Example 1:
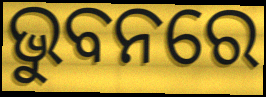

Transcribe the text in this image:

ଭୁବନରେ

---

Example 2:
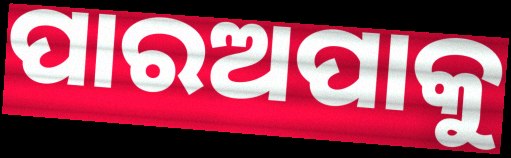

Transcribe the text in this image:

ପାରଅପାକୁ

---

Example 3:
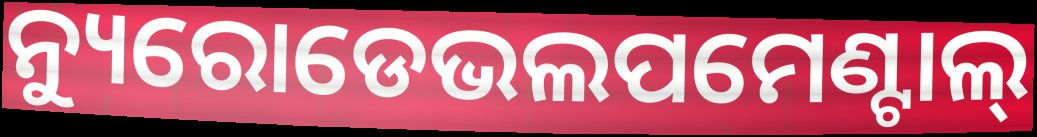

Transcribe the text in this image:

ନ୍ୟୁରୋଡେଭଲପମେଣ୍ଟାଲ୍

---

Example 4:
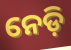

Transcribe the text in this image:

ନେଡ଼ି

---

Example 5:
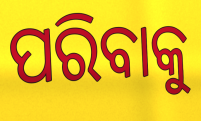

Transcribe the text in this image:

ପରିବାକୁ